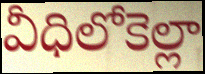
వీధిలోకెల్లా